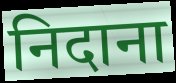
निदाना